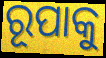
ରୂପାକୁ